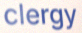
clergy